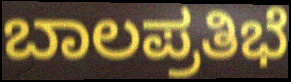
ಬಾಲಪ್ರತಿಭೆ